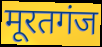
मूरतगंज